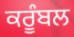
ਕਰੂੰਬਲ